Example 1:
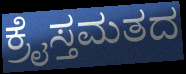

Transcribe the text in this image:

ಕ್ರೈಸ್ತಮತದ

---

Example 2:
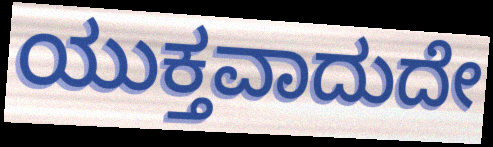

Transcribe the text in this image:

ಯುಕ್ತವಾದುದೇ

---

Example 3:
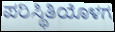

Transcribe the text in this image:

ಪರಿಸ್ಥಿತಿಯೊಳಗ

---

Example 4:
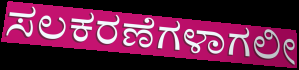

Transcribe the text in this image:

ಸಲಕರಣೆಗಳಾಗಲೀ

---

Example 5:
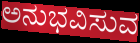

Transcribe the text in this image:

ಅನುಭವಿಸುವ